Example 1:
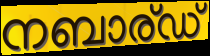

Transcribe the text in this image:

നബാര്ഡ്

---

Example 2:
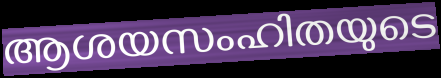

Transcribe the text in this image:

ആശയസംഹിതയുടെ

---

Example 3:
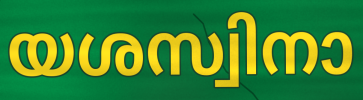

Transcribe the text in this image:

യശസ്വിനാ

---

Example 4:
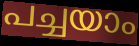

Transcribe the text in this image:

പച്ചയാം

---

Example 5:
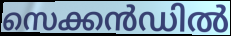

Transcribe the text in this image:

സെക്കൻഡിൽ